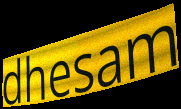
dhesam